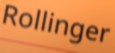
Rollinger